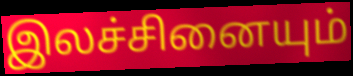
இலச்சினையும்